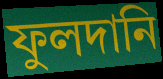
ফুলদানি